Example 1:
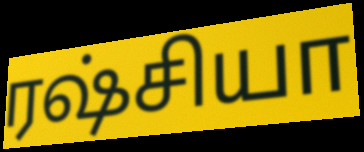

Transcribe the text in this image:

ரஷ்சியா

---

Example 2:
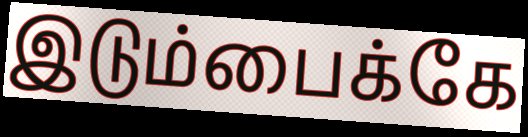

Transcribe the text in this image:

இடும்பைக்கே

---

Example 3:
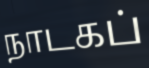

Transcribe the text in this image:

நாடகப்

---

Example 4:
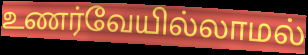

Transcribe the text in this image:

உணர்வேயில்லாமல்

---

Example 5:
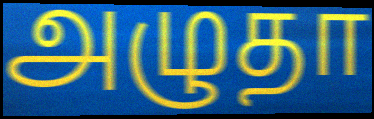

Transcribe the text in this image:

அழுதா